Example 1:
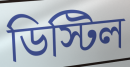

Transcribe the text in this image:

ডিস্টিল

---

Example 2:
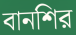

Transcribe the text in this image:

বানশির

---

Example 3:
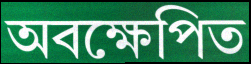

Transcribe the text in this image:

অবক্ষেপিত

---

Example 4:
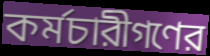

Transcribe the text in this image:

কর্মচারীগণের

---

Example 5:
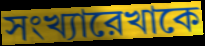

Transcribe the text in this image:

সংখ্যারেখাকে